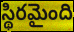
స్థిరమైంది